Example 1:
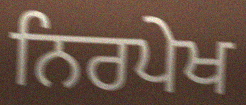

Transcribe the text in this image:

ਨਿਰਪੇਖ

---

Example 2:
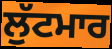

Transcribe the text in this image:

ਲੁੱਟਮਾਰ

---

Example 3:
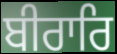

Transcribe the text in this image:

ਬੀਰਾਰਿ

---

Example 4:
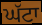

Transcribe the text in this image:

ਘੱਟਾ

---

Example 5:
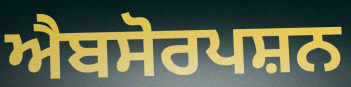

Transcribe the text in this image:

ਐਬਸੋਰਪਸ਼ਨ